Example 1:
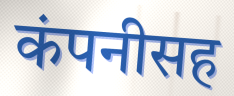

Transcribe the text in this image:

कंपनीसह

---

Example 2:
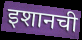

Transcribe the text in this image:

इशानची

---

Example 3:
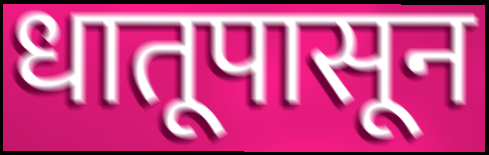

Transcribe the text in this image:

धातूपासून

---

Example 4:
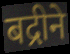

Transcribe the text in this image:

बद्रीने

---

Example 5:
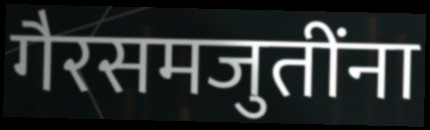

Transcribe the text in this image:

गैरसमजुतींना